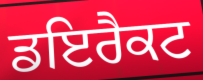
ਡਇਰੈਕਟ